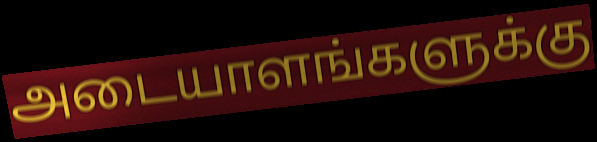
அடையாளங்களுக்கு